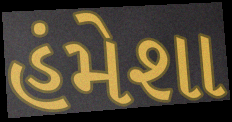
હંમેશા